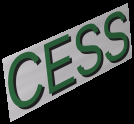
CESS